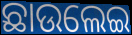
ଛାଉଲେଇ